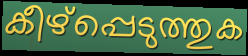
കീഴ്പ്പെടുത്തുക